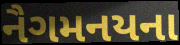
નૈગમનયના